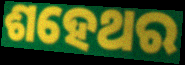
ଶହେଥର